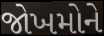
જોખમોને